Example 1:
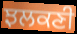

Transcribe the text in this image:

ਝਲਕਣੀ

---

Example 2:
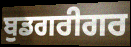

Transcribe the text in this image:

ਬੁਡਗਰੀਗਰ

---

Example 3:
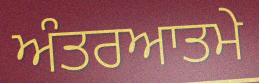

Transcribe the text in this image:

ਅੰਤਰਆਤਮੇ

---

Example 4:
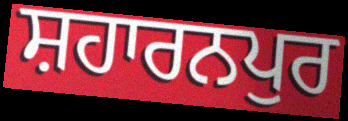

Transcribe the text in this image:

ਸ਼ਹਾਰਨਪੁਰ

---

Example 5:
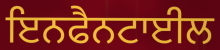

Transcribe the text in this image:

ਇਨਫੈਨਟਾਈਲ